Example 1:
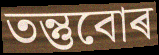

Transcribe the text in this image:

তন্তুবোৰ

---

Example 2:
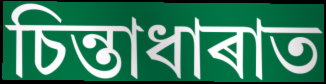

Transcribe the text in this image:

চিন্তাধাৰাত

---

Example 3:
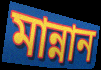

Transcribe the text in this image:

মান্নান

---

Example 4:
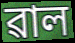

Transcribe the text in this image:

ৱাল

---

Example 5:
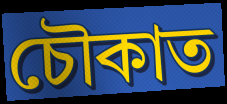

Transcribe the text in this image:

চৌকাত